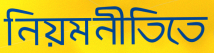
নিয়মনীতিতে